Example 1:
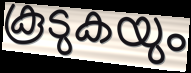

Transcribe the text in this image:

കൂടുകയും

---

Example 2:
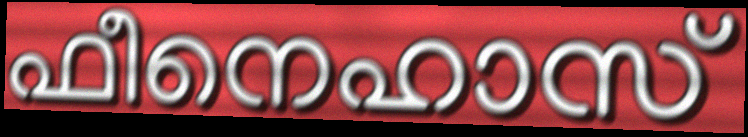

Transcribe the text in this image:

ഫീനെഹാസ്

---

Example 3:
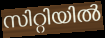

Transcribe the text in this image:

സിറ്റിയിൽ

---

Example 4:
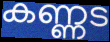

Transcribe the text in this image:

കണ്ണട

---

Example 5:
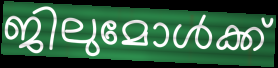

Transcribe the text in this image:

ജിലുമോൾക്ക്